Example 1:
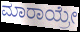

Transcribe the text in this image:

ಮಾರಾಯ್ರೇ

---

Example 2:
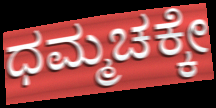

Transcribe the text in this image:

ಧಮ್ಮಚಕ್ಕೇ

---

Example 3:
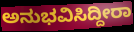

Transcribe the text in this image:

ಅನುಭವಿಸಿದ್ದೀರಾ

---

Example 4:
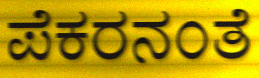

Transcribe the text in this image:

ಪೆಕರನಂತೆ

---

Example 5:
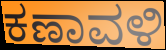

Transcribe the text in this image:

ಕಣಾವಳಿ